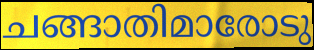
ചങ്ങാതിമാരോടു